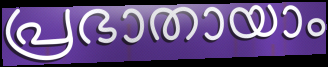
പ്രഭാതായാം